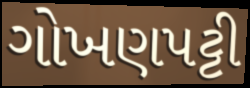
ગોખણપટ્ટી